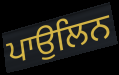
ਪਾਉਲਿਨ